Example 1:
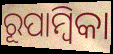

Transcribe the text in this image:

ରୂପାମ୍ୱିକା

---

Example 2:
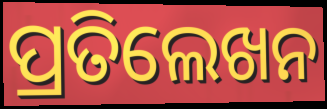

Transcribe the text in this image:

ପ୍ରତିଲେଖନ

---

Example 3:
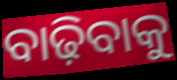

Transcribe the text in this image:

ବାଢ଼ିବାକୁ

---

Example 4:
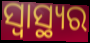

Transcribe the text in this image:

ସ୍ୱାସ୍ଥ୍ୟର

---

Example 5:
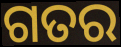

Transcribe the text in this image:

ଗତର